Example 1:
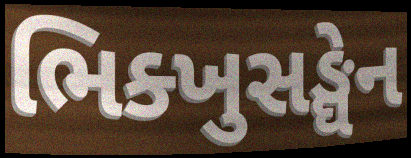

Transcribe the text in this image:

ભિક્ખુસઙ્ઘેન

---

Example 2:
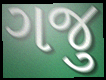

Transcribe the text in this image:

ગજુ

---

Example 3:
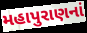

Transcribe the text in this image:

મહાપુરાણનાં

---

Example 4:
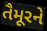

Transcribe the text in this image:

તૈમૂરને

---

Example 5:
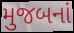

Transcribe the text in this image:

મુજબનાં